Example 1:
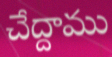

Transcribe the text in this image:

చేద్దాము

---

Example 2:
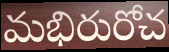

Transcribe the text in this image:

మభిరురోచ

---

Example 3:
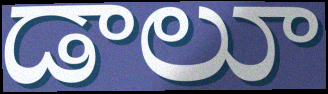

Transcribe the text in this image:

డాలూ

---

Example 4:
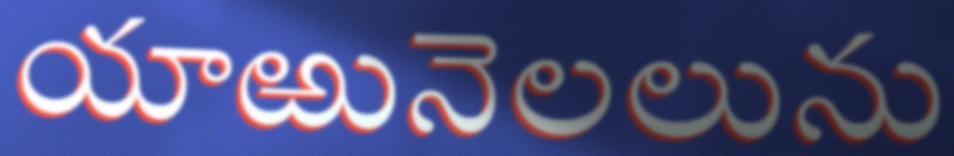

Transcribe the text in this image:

యాఱునెలలును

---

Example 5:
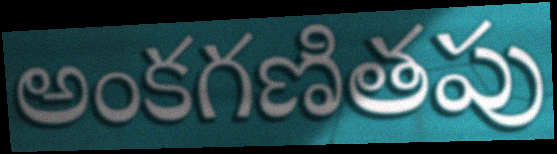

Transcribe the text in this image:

అంకగణితపు